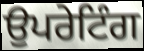
ਉਪਰੇਟਿੰਗ